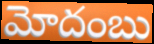
మోదంబు